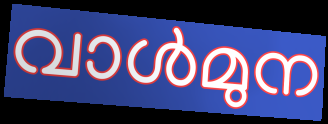
വാൾമുന